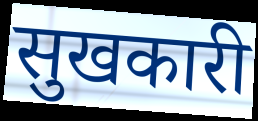
सुखकारी